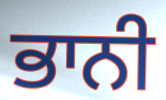
ਭਾਨੀ